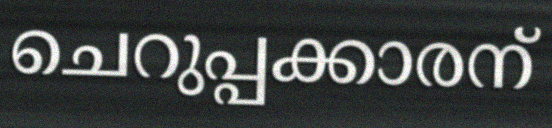
ചെറുപ്പക്കാരന്